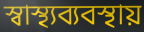
স্বাস্থ্যব্যবস্থায়